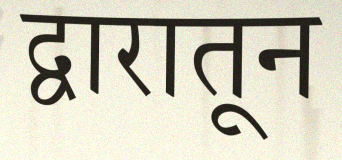
द्वारातून